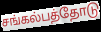
சங்கல்பத்தோடு